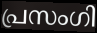
പ്രസംഗി